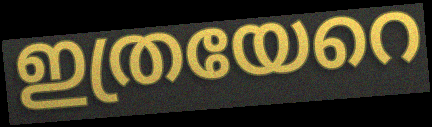
ഇത്രയേറെ